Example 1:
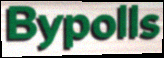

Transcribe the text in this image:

Bypolls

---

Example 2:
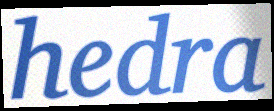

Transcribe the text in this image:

hedra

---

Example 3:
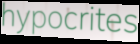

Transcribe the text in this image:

hypocrites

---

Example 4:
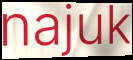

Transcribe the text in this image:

najuk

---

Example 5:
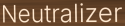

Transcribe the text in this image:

Neutralizer